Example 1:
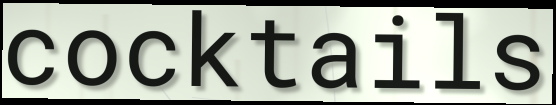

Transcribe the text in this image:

cocktails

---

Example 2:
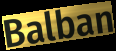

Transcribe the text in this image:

Balban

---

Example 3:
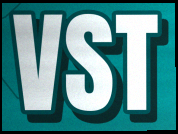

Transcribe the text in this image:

VST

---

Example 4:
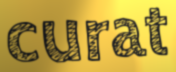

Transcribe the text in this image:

curat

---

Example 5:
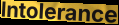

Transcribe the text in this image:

Intolerance